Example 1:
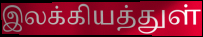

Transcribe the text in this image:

இலக்கியத்துள்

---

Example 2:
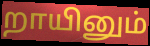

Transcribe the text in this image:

றாயினும்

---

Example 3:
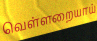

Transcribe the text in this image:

வெள்ளறையாய்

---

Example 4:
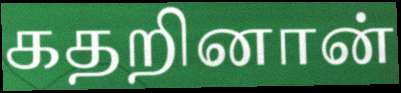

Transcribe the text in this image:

கதறினான்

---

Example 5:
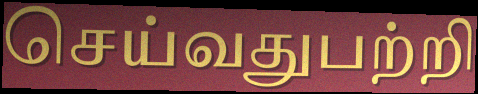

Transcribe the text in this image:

செய்வதுபற்றி